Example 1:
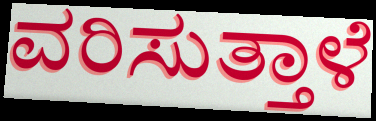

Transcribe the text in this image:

ವರಿಸುತ್ತಾಳೆ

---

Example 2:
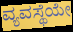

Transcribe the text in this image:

ವ್ಯವಸ್ಥೆಯೇ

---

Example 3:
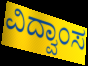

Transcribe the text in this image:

ವಿದ್ವಾಂಸ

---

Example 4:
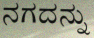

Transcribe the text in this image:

ನಗದನ್ನು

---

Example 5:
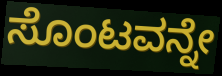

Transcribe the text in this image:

ಸೊಂಟವನ್ನೇ